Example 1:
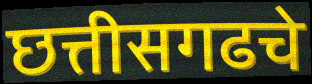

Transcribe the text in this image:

छत्तीसगढचे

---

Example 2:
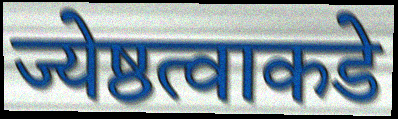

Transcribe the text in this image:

ज्येष्ठत्वाकडे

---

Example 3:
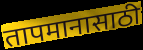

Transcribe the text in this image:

तापमानासाठी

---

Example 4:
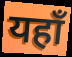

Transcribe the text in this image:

यहाँ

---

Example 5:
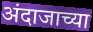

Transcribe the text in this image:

अंदाजाच्या